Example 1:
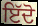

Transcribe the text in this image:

ਇੱਦੋ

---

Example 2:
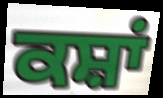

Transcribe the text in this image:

ਕਸ਼ਾਂ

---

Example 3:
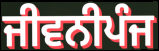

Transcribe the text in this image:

ਜੀਵਨੀਪੰਜ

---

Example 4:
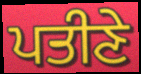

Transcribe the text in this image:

ਪਤੀਣੇ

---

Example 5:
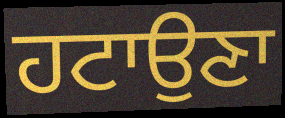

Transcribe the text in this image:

ਹਟਾਉਣਾ